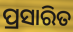
ପ୍ରସାରିତ